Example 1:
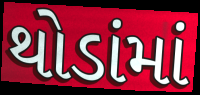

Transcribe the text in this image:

થોડાંમાં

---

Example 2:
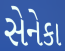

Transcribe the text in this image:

સેનેકા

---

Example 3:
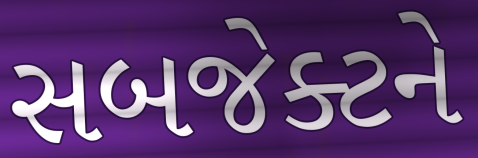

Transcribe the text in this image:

સબજેક્ટને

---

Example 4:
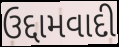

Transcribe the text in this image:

ઉદ્દામવાદી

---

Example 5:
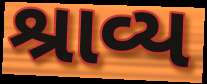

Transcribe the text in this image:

શ્રાવ્ય